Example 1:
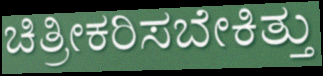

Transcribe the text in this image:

ಚಿತ್ರೀಕರಿಸಬೇಕಿತ್ತು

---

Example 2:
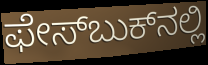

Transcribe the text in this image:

ಫೇಸ್‌ಬುಕ್‌ನಲ್ಲಿ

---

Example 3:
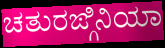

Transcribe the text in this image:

ಚತುರಙ್ಗಿನಿಯಾ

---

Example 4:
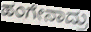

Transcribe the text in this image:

ಹಂಗೇನಾದ್ರು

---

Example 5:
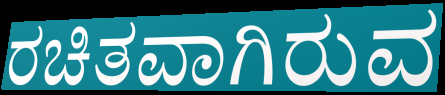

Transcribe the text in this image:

ರಚಿತವಾಗಿರುವ